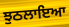
ਝੁਠਲਾਇਆ